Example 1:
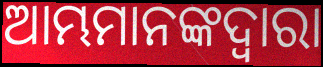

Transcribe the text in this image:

ଆମ୍ଭମାନଙ୍କଦ୍ୱାରା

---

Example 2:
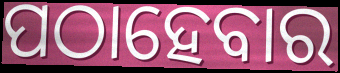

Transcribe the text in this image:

ପଠାହେବାର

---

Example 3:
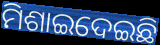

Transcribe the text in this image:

ମିଶାଇଦେଇଛି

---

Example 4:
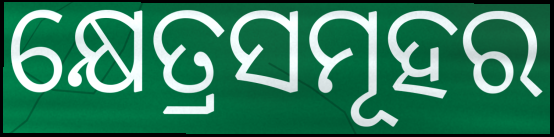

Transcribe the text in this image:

କ୍ଷେତ୍ରସମୂହର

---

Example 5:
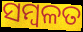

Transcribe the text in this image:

ସମ୍ବଳତ